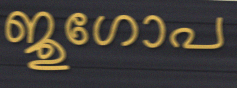
ജുഗോപ